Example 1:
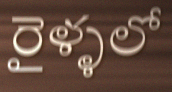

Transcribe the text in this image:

రైళ్ళలో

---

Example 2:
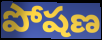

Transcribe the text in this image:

పోషణ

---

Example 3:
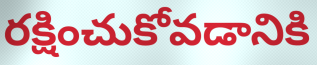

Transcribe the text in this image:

రక్షించుకోవడానికి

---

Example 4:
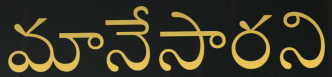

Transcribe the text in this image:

మానేసారని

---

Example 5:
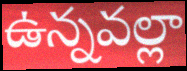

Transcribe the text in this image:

ఉన్నవల్లా